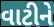
વાટીને